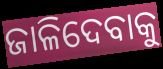
ଜାଳିଦେବାକୁ